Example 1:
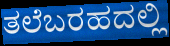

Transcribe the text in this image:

ತಲೆಬರಹದಲ್ಲಿ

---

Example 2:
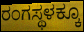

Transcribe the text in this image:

ರಂಗಸ್ಥಳಕ್ಕೂ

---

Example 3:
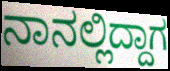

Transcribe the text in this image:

ನಾನಲ್ಲಿದ್ದಾಗ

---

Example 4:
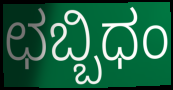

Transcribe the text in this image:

ಛಬ್ಬಿಧಂ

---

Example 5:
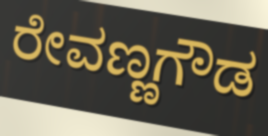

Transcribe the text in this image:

ರೇವಣ್ಣಗೌಡ